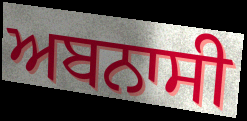
ਅਬਨਾਸੀ